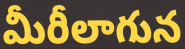
మీరీలాగున